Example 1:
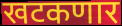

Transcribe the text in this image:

खटकणार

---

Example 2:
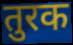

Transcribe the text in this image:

तुरक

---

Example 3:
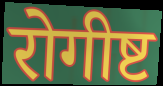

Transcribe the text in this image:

रोगीष्ट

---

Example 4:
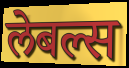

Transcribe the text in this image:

लेबल्स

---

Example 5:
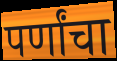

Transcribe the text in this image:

पर्णांचा